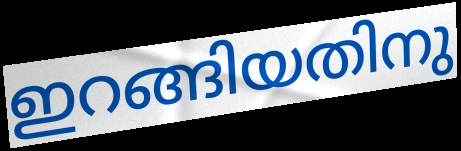
ഇറങ്ങിയതിനു